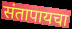
संतापायचा